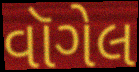
વૉગેલ